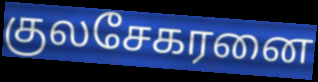
குலசேகரனை